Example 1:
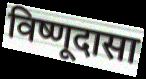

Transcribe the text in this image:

विष्णूदासा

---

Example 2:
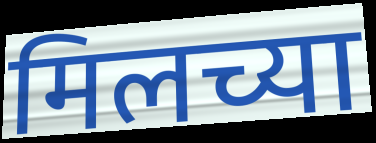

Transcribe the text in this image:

मिलच्या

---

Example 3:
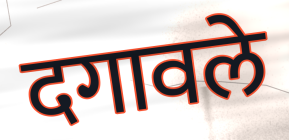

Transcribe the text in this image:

दगावले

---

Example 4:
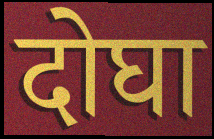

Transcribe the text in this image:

दोघा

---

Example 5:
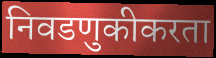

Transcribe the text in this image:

निवडणुकीकरता